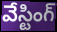
వేస్టింగ్